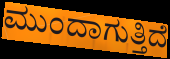
ಮುಂದಾಗುತ್ತಿದೆ